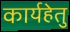
कार्यहेतु